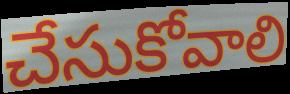
చేసుకోవాలి